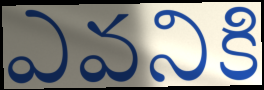
ఎవనికి